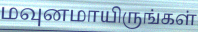
மவுனமாயிருங்கள்